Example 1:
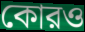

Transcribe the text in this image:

কোরও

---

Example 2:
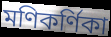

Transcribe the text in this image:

মণিকর্ণিকা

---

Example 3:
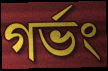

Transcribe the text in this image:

গর্ভং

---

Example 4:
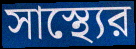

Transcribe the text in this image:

সাস্থ্যের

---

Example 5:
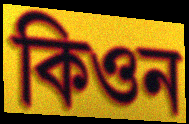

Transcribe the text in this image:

কিওন